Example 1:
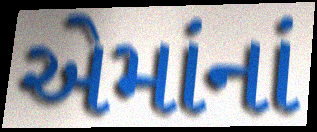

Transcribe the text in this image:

એમાંનાં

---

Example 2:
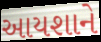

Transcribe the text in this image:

આયશાને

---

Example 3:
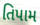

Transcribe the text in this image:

તિપામ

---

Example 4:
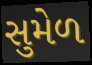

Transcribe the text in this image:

સુમેળ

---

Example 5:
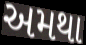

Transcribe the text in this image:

અમથા